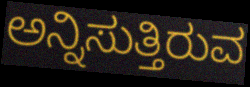
ಅನ್ನಿಸುತ್ತಿರುವ